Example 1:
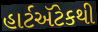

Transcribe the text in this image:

હાર્ટઍટેકથી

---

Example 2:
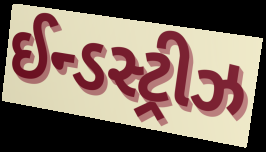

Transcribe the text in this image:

ઈન્ડસ્ટ્રીઝ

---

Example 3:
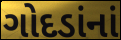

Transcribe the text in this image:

ગોદડાંનાં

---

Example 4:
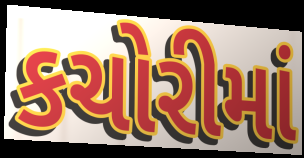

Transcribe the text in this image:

કચોરીમાં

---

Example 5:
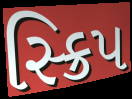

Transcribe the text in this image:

સ્ક્રિપ